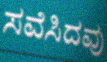
ಸವೆಸಿದವು